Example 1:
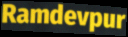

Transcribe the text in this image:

Ramdevpur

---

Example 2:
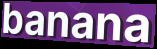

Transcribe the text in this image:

banana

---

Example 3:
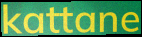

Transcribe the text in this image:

kattane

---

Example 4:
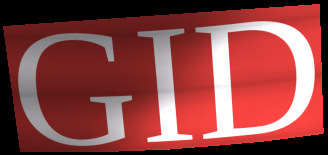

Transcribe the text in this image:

GID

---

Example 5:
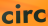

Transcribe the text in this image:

circ